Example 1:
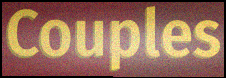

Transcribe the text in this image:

Couples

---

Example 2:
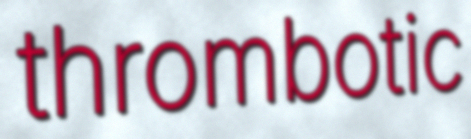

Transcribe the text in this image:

thrombotic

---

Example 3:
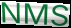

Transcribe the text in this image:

NMS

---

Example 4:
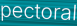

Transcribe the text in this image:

pectoral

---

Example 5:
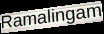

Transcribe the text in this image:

Ramalingam